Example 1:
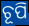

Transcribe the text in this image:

ଚୂପି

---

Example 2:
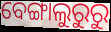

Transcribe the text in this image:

ବେଙ୍ଗାଲୁରୁରୁ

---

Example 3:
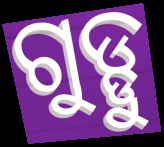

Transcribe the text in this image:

ଗୁଡ୍ଡୁ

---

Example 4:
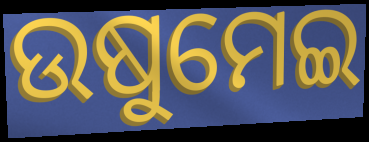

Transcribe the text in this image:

ଉଷୁମେଇ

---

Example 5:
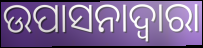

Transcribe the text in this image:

ଉପାସନାଦ୍ଵାରା